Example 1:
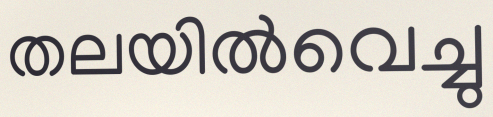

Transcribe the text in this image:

തലയിൽവെച്ചു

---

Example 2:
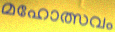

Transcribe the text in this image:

മഹോത്സവം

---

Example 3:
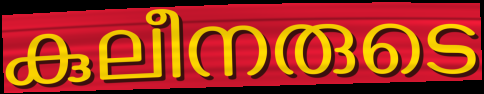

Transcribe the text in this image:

കുലീനരുടെ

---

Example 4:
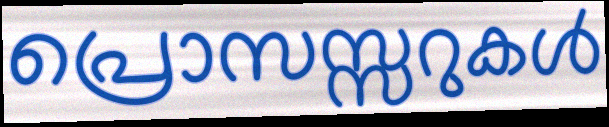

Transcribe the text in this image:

പ്രൊസസ്സറുകൾ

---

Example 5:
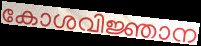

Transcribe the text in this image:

കോശവിജ്ഞാന